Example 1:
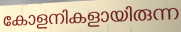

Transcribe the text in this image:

കോളനികളായിരുന്ന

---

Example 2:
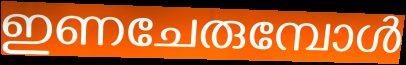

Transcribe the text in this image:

ഇണചേരുമ്പോൾ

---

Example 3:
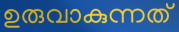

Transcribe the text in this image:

ഉരുവാകുന്നത്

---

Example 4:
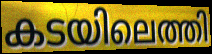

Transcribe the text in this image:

കടയിലെത്തി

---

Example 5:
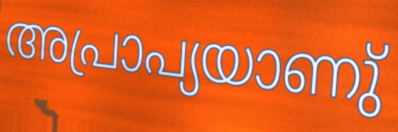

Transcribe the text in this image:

അപ്രാപ്യയാണു്